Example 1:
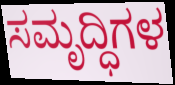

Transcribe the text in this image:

ಸಮೃದ್ಧಿಗಳ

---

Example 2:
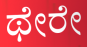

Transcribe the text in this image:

ಥೇರೇ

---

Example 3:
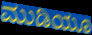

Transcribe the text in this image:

ಮುಡಿಯೂ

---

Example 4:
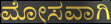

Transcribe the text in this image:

ಮೋಸವಾಗಿ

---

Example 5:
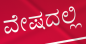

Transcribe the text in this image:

ವೇಷದಲ್ಲಿ